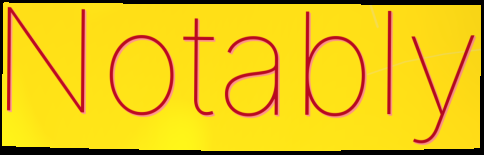
Notably